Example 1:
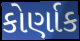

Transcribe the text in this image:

કોર્ણાક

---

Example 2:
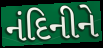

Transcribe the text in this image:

નંદિનીને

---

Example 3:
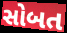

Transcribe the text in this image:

સોબત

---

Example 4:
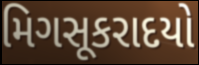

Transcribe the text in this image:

મિગસૂકરાદયો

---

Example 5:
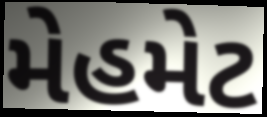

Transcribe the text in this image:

મેહમેટ